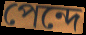
পেন্দে